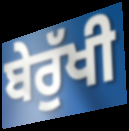
ਬੇਰੁੱਖੀ